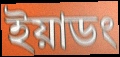
ইয়াডং